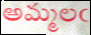
అమ్మలఁ